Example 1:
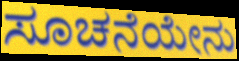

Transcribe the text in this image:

ಸೂಚನೆಯೇನು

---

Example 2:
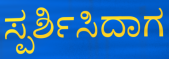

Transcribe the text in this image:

ಸ್ಪರ್ಶಿಸಿದಾಗ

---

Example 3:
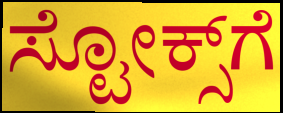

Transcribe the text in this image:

ಸ್ಟೋಕ್ಸ್‌ಗೆ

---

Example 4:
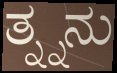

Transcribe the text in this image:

ತ್ನ್ನನು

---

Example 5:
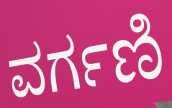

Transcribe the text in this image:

ವರ್ಗಣಿ